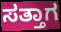
ಸತ್ತಾಗ